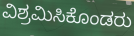
ವಿಶ್ರಮಿಸಿಕೊಂಡರು